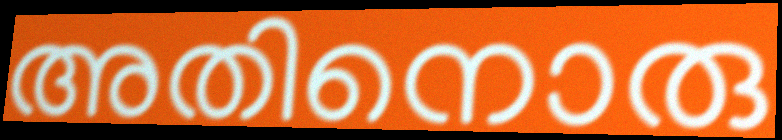
അതിനൊരു